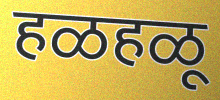
हळहळू